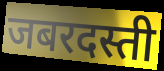
जबरदस्ती